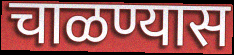
चाळण्यास